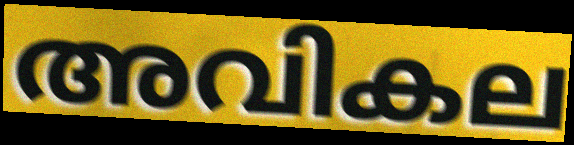
അവികല